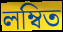
লম্বিত